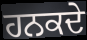
ਹਨਕਦੇ